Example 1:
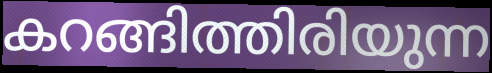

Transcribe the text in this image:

കറങ്ങിത്തിരിയുന്ന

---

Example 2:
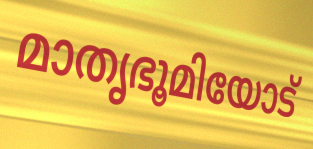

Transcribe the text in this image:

മാതൃഭൂമിയോട്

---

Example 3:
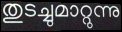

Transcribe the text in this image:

തുടച്ചുമാറ്റുന്നു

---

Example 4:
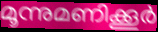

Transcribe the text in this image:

മൂന്നുമണിക്കൂർ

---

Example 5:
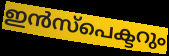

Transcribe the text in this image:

ഇൻസ്പെക്ടറും